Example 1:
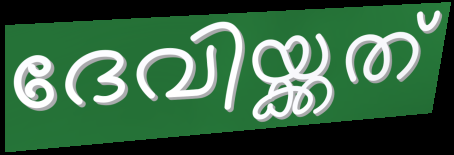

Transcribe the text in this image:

ദേവിയ്ക്കത്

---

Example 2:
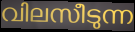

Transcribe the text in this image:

വിലസീടുന്ന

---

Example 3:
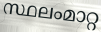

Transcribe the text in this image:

സ്ഥലംമാറ്റ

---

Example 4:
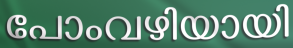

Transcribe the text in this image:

പോംവഴിയായി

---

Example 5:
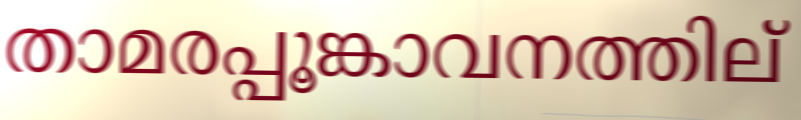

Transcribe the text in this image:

താമരപ്പൂങ്കാവനത്തില്